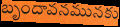
బృందావనమునకు